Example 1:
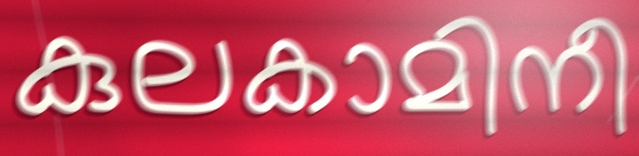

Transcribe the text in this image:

കുലകാമിനീ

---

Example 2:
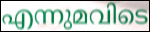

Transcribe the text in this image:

എന്നുമവിടെ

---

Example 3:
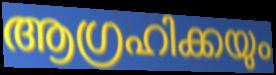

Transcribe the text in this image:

ആഗ്രഹിക്കയും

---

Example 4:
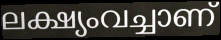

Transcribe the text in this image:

ലക്ഷ്യംവച്ചാണ്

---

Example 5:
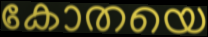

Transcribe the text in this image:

കോതയെ